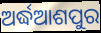
ଅର୍ଦ୍ଧଆଶପୁର